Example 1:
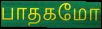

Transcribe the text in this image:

பாதகமோ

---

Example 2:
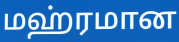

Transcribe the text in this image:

மஹ்ரமான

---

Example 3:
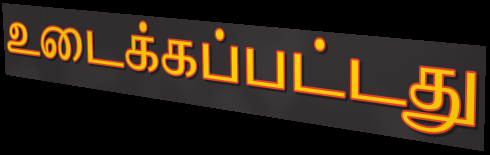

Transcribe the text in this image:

உடைக்கப்பட்டது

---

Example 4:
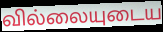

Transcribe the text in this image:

வில்லையுடைய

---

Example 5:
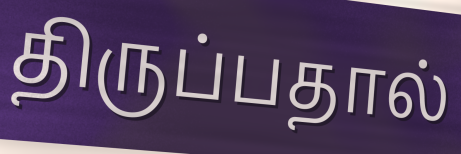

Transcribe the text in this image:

திருப்பதால்